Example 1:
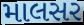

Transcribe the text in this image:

માલસર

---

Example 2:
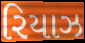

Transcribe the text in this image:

રિયાઝ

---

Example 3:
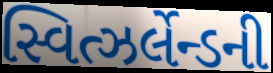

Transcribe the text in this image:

સ્વિત્ઝર્લેન્ડની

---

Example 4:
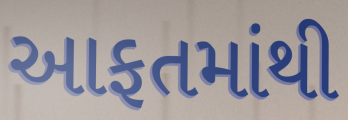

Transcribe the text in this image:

આફતમાંથી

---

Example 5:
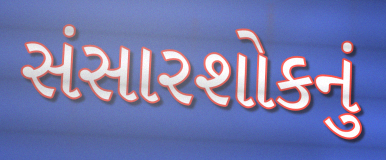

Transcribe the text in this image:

સંસારશોકનું